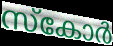
സ്‌കോർ